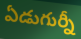
ఏడుగుర్నీ